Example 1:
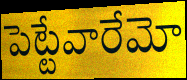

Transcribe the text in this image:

పెట్టేవారేమో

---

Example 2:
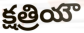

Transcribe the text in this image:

క్షత్రియౌ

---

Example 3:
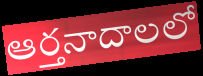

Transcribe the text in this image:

ఆర్తనాదాలలో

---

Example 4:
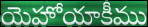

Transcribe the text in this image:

యెహోయాకీము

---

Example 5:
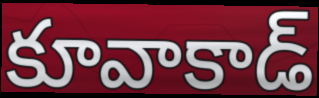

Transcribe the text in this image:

కూవాకాడ్